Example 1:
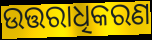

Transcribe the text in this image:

ଉତ୍ତରାଧିକରଣ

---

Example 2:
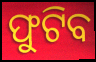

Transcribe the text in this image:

ଫୁଟିବ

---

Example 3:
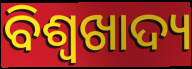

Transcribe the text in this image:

ବିଶ୍ୱଖାଦ୍ୟ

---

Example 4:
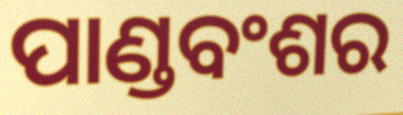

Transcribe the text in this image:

ପାଣ୍ଡବଂଶର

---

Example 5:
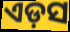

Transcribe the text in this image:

ଏଡ଼ସ